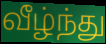
வீழ்ந்து